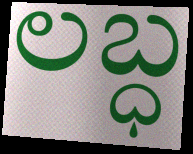
లబ్ధ